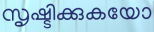
സൃഷ്ടിക്കുകയോ